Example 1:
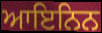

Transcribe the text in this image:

ਆਇਨਿਨ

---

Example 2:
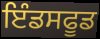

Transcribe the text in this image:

ਇੰਡਸਫੂਡ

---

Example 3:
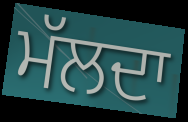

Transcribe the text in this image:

ਮੱਲਦਾ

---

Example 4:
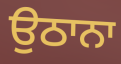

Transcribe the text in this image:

ਉਠਾਨਾ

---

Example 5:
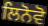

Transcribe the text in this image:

ਲਿਨੋਵੋ